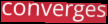
converges